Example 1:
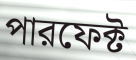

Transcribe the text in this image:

পারফেক্ট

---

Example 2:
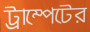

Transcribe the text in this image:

ট্রাম্পেটের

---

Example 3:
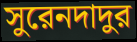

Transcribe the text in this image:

সুরেনদাদুর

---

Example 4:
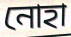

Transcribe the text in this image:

নোহা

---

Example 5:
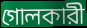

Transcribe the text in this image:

গোলকারী